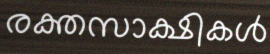
രക്തസാക്ഷികൾ